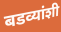
बडव्यांशी